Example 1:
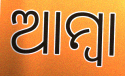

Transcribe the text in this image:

ଆମ୍ବା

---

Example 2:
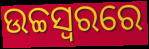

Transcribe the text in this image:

ଉଚ୍ଚସ୍ୱରରେ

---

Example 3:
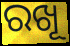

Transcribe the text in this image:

ରଖୂ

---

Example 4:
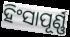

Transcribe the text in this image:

ହିଂସାପୂର୍ଣ୍ଣ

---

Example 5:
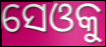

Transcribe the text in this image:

ସେଓକୁ